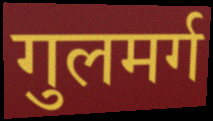
गुलमर्ग